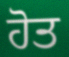
ਹੋਤ